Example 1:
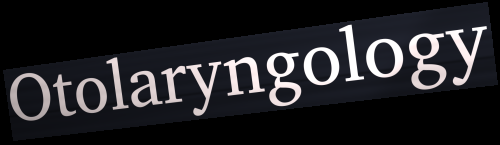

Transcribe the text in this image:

Otolaryngology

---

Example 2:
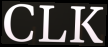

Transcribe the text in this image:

CLK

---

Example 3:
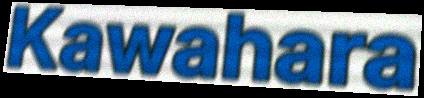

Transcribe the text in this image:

Kawahara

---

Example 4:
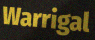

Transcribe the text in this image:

Warrigal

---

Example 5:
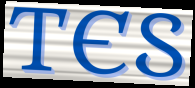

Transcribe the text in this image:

TES